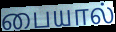
பையால்